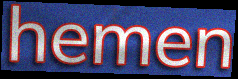
hemen